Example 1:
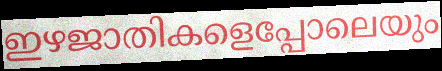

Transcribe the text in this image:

ഇഴജാതികളെപ്പോലെയും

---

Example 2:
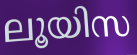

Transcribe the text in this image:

ലൂയിസ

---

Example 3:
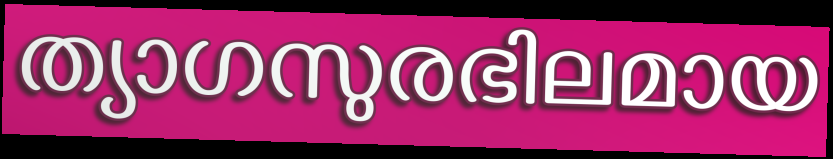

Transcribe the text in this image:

ത്യാഗസുരഭിലമായ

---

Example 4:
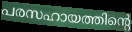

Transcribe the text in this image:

പരസഹായത്തിന്റെ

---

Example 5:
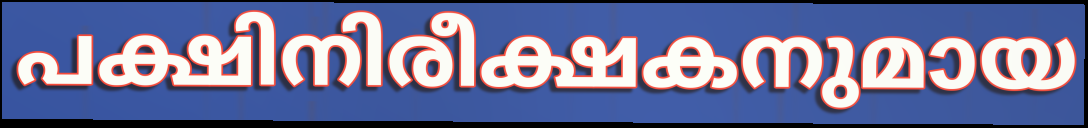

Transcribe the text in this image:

പക്ഷിനിരീക്ഷകനുമായ